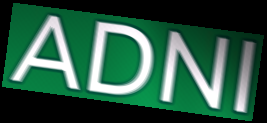
ADNI